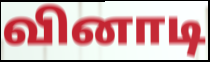
வினாடி